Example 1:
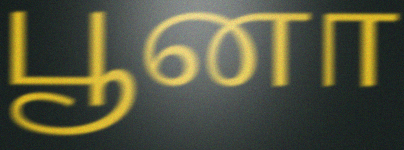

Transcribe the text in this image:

பூனா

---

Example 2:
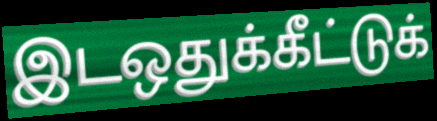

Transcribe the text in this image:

இடஒதுக்கீட்டுக்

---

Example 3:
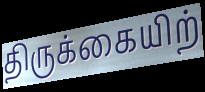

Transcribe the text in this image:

திருக்கையிற்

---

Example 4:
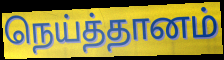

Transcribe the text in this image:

நெய்த்தானம்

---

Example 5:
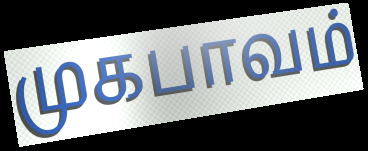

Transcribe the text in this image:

முகபாவம்